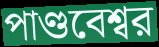
পাণ্ডবেশ্বর